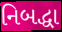
નિબદ્ધા